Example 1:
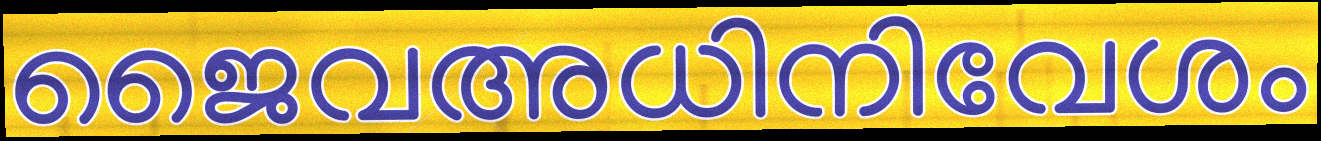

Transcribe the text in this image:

ജൈവഅധിനിവേശം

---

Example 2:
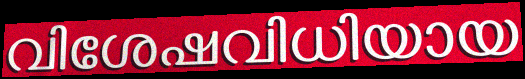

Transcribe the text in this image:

വിശേഷവിധിയായ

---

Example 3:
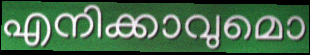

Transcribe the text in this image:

എനിക്കാവുമൊ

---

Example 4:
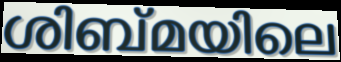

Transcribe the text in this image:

ശിബ്മയിലെ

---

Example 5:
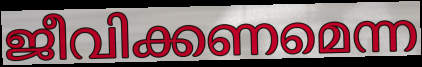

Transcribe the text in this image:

ജീവിക്കണമെന്ന